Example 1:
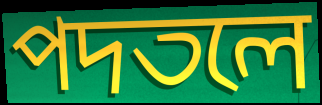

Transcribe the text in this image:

পদতলে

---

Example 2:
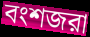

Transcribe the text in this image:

বংশজরা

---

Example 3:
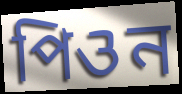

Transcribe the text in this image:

পিওন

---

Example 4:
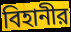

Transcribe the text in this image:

বিহানীর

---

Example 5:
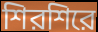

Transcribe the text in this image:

শিরশিরে